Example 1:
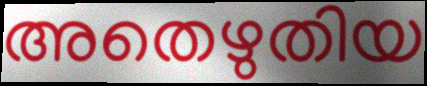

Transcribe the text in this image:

അതെഴുതിയ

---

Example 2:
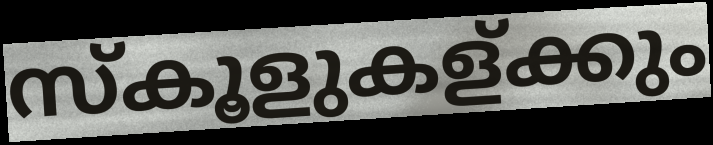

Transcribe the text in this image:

സ്കൂളുകള്ക്കും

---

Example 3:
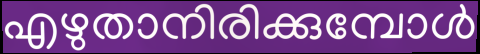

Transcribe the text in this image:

എഴുതാനിരിക്കുമ്പോൾ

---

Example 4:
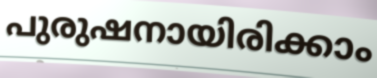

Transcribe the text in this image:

പുരുഷനായിരിക്കാം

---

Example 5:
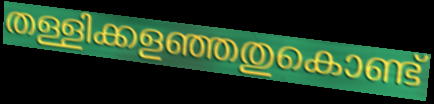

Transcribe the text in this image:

തള്ളിക്കളഞ്ഞതുകൊണ്ട്